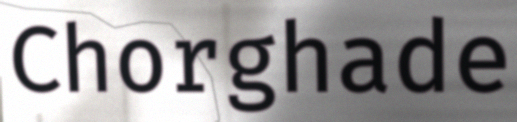
Chorghade